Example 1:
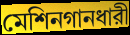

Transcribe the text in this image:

মেশিনগানধারী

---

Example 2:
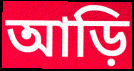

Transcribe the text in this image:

আড়ি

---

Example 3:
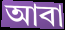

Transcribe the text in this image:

আবা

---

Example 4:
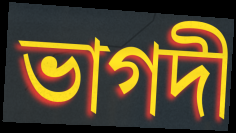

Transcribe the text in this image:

ভাগদী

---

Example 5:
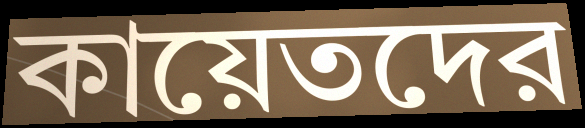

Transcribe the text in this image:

কায়েতদের